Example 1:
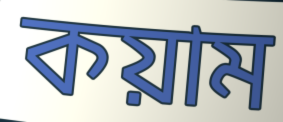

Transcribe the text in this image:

কয়াম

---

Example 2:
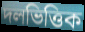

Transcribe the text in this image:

দলভিত্তিক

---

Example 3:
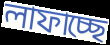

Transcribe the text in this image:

লাফাচ্ছে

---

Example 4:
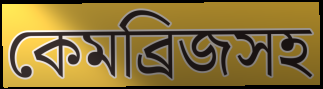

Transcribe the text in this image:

কেমব্রিজসহ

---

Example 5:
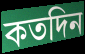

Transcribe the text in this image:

কতদিন